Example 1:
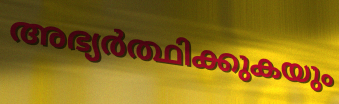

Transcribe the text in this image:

അഭ്യർത്ഥിക്കുകയും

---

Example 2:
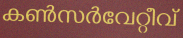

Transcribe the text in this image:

കൺസർവേറ്റീവ്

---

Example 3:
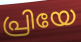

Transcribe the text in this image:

പ്രിയേ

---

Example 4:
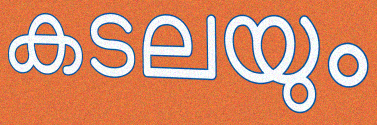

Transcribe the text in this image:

കടലയും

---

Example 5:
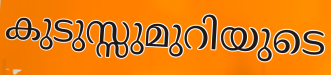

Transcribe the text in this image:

കുടുസ്സുമുറിയുടെ